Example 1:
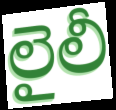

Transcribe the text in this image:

లైలీ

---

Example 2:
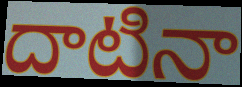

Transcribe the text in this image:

దాటినా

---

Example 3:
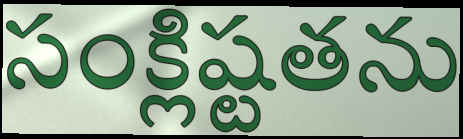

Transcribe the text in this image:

సంక్లిష్టతను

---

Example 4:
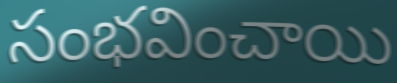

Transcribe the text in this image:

సంభవించాయి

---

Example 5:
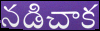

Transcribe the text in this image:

నడిచాక